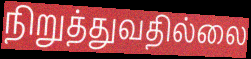
நிறுத்துவதில்லை